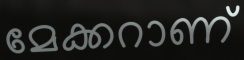
മേക്കറാണ്